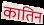
कातिन